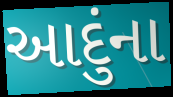
આદુંના